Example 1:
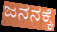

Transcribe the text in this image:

ಜನನಕ್ಕೆ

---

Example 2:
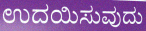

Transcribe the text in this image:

ಉದಯಿಸುವುದು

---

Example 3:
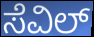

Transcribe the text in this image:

ಸೆವಿಲ್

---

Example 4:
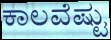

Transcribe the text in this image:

ಕಾಲವೆಷ್ಟು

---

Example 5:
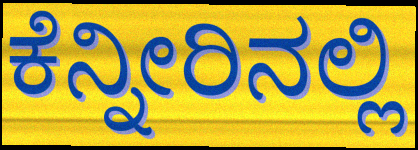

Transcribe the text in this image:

ಕೆನ್ನೀರಿನಲ್ಲಿ